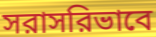
সরাসরিভাবে